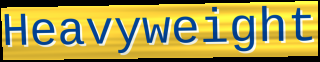
Heavyweight